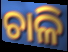
ଚାଳି